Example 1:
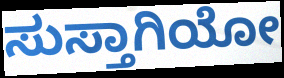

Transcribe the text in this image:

ಸುಸ್ತಾಗಿಯೋ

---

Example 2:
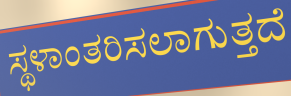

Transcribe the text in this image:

ಸ್ಥಳಾಂತರಿಸಲಾಗುತ್ತದೆ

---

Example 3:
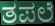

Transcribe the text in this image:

ತಪಲೆ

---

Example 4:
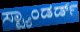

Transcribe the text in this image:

ಸ್ಟ್ಯಾಂಡರ್ಡ್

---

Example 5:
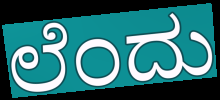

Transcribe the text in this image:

ಲೆಂದು